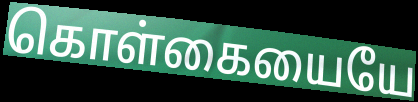
கொள்கையையே